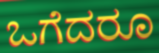
ಒಗೆದರೂ